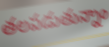
తలపడుతున్నాం